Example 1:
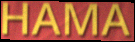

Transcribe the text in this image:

HAMA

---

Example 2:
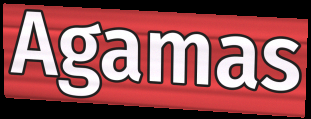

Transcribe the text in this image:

Agamas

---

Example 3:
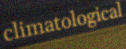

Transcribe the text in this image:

climatological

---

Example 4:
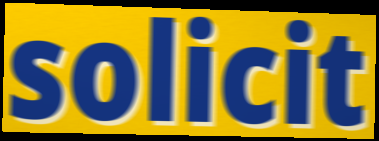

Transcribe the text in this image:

solicit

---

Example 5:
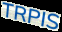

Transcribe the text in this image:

TRPIS